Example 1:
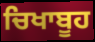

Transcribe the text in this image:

ਚਿਖਾਬੂਹ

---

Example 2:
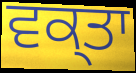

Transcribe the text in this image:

ਵਕ੍ਤਾ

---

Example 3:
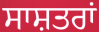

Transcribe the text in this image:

ਸਾਸ਼ਤਰਾਂ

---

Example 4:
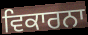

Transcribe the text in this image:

ਵਿਕਾਰਨਾ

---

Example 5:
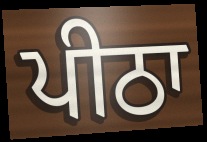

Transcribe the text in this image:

ਪੀਠਾ